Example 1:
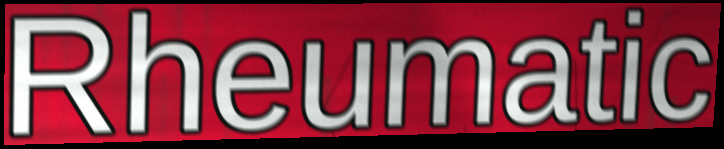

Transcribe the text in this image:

Rheumatic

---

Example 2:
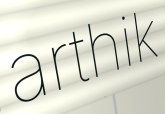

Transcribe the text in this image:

arthik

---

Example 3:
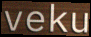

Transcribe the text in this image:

veku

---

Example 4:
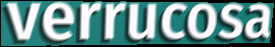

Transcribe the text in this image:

verrucosa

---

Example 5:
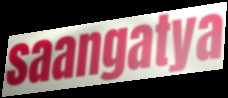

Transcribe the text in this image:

saangatya